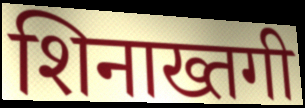
शिनाख्तगी